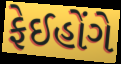
ફેઈહોંગે